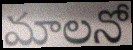
మాలనో